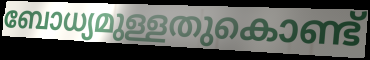
ബോധ്യമുള്ളതുകൊണ്ട്